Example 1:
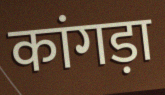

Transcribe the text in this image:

कांगड़ा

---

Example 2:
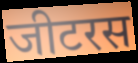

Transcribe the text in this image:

जीटरस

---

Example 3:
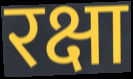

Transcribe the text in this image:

रक्षा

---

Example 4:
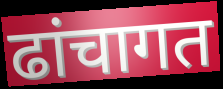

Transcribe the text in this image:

ढांचागत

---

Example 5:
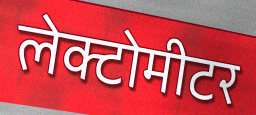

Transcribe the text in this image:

लेक्टोमीटर